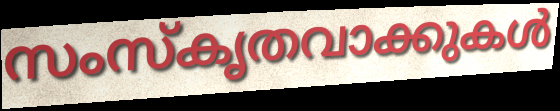
സംസ്കൃതവാക്കുകൾ